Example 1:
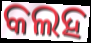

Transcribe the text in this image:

କଲହ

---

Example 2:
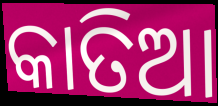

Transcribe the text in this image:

କାତିଆ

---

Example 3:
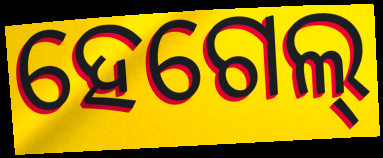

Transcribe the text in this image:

ହେଗେଲ୍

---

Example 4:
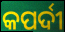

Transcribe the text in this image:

କପର୍ଦୀ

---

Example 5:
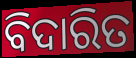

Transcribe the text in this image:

ବିଦାରିତ